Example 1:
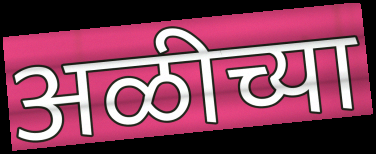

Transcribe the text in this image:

अळीच्या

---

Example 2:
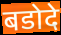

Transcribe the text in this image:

बडोदे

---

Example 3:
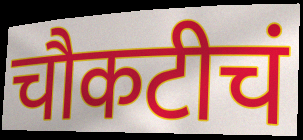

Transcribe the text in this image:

चौकटीचं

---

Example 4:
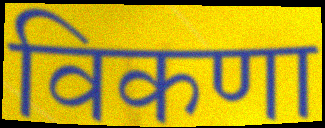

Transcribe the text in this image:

विकणा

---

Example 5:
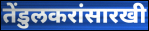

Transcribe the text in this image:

तेंडुलकरांसारखी